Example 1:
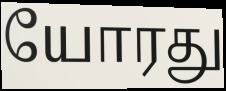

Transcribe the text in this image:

யோரது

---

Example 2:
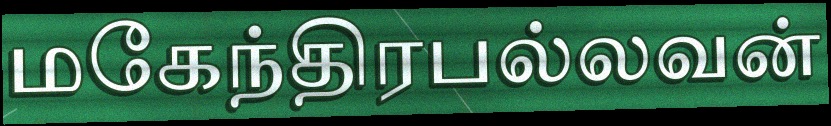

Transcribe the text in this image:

மகேந்திரபல்லவன்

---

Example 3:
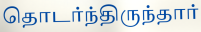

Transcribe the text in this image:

தொடர்ந்திருந்தார்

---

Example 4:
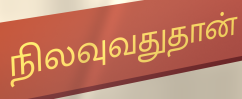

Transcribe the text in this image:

நிலவுவதுதான்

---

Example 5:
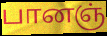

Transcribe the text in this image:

பானஞ்